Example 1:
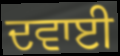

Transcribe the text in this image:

ਦਵਾਈ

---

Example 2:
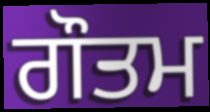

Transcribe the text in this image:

ਗੌਤਮ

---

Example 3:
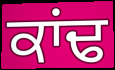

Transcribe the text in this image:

ਕਾਂਢ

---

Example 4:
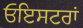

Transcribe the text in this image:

ਓਇਸਟਰਾਂ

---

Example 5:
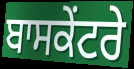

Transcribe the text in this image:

ਬਾਸਕੇਂਟਰੇ